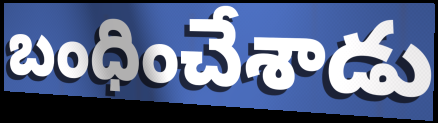
బంధించేశాడు